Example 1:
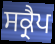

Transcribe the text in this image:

ਸਕ੍ਰੈਪ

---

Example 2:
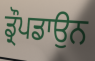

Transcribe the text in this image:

ਡ੍ਰੌਪਡਾਉਨ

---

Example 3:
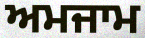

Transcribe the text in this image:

ਅਮਜਾਮ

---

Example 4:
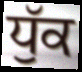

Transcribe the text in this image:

ਧੁੱਕ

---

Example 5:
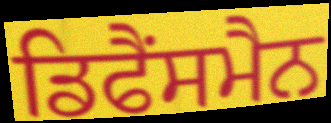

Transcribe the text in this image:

ਡਿਫੈਂਸਮੈਨ